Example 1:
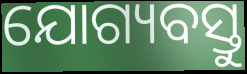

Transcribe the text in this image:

ଯୋଗ୍ୟବସ୍ତୁ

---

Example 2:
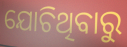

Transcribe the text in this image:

ଯୋଚିଥିବାରୁ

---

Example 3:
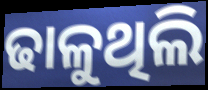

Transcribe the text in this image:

ଢାଳୁଥିଲି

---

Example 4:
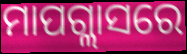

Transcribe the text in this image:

ମାପଗ୍ଲାସରେ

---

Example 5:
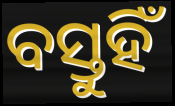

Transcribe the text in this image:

ବସ୍ତୁହିଁ